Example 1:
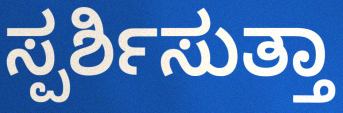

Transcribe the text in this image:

ಸ್ಪರ್ಶಿಸುತ್ತಾ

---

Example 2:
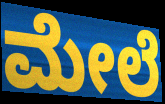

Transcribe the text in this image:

ಮೇಲೆ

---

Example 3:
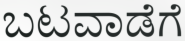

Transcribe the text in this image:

ಬಟವಾಡೆಗೆ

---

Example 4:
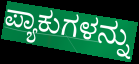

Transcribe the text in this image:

ಪ್ಯಾಕುಗಳನ್ನು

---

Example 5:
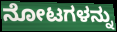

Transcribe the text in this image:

ನೋಟಗಳನ್ನು